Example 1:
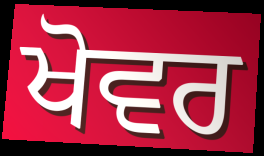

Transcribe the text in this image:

ਖੋਵਰ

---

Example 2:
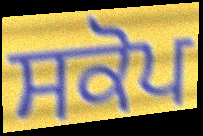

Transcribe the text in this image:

ਸਕੋਪ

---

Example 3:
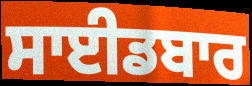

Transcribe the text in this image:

ਸਾਈਡਬਾਰ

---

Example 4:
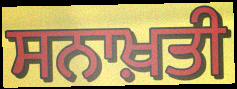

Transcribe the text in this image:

ਸਨਾਖ਼ਤੀ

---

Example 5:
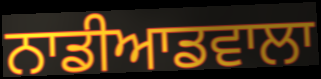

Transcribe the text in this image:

ਨਾਡੀਆਡਵਾਲਾ